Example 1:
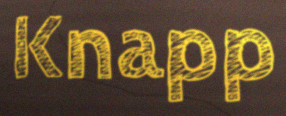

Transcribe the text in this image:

Knapp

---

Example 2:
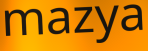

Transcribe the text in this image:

mazya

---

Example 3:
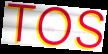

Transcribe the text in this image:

TOS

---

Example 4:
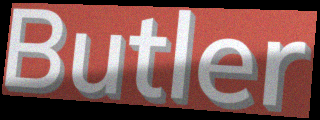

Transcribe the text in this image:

Butler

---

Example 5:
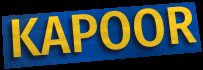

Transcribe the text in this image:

KAPOOR